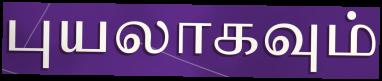
புயலாகவும்